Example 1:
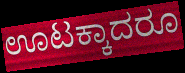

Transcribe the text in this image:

ಊಟಕ್ಕಾದರೂ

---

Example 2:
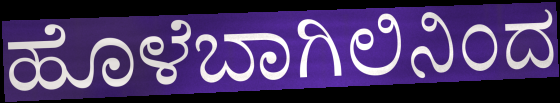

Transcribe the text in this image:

ಹೊಳೆಬಾಗಿಲಿನಿಂದ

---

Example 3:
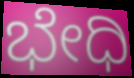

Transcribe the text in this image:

ಭೇಧಿ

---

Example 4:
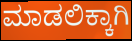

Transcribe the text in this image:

ಮಾಡಲಿಕ್ಕಾಗಿ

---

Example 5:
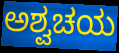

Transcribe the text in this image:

ಅಶ್ವಚಯ